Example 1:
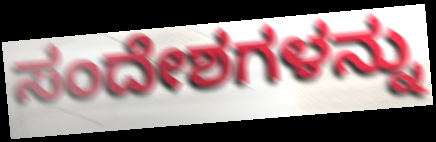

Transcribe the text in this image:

ಸಂದೇಶಗಳನ್ನು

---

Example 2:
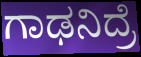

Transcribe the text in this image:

ಗಾಢನಿದ್ರೆ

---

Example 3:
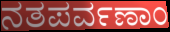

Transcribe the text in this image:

ನತಪರ್ವಣಾಂ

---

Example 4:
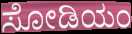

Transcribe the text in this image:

ಸೋಡಿಯಂ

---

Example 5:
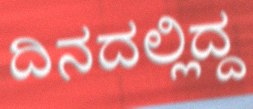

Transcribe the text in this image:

ದಿನದಲ್ಲಿದ್ದ